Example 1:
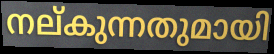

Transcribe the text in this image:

നല്കുന്നതുമായി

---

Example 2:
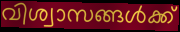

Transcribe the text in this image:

വിശ്വാസങ്ങൾക്ക്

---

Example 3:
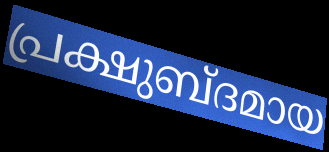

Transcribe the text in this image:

പ്രക്ഷുബ്ദമായ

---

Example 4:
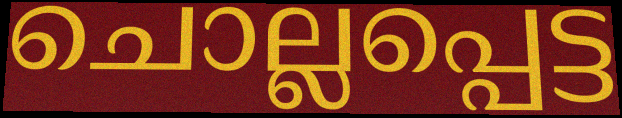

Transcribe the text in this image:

ചൊല്ലപ്പെട്ട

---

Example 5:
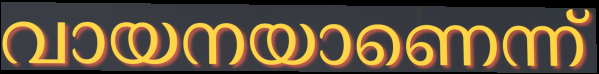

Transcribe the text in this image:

വായനയാണെന്ന്